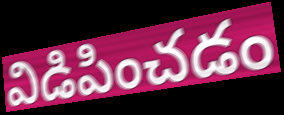
విడిపించడం